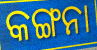
କଙ୍ଗନା